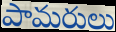
పామరులు